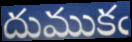
దుముకఁ